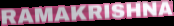
RAMAKRISHNA